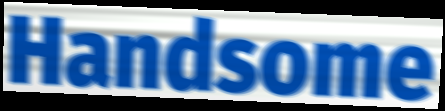
Handsome